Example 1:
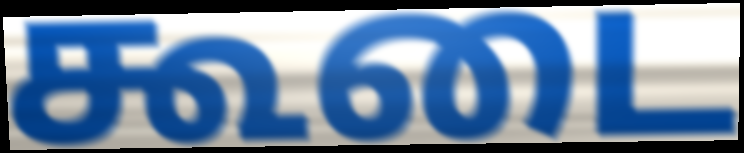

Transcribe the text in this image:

கூடை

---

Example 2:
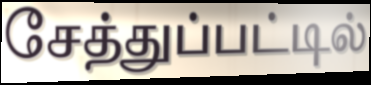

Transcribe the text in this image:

சேத்துப்பட்டில்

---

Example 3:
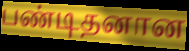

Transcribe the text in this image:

பண்டிதனான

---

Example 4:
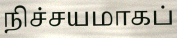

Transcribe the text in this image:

நிச்சயமாகப்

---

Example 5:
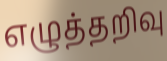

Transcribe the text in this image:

எழுத்தறிவு